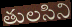
తులసిని